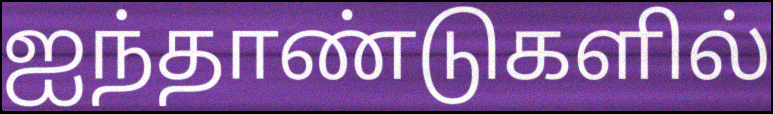
ஐந்தாண்டுகளில்